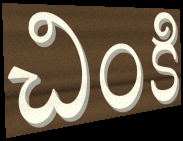
చింకి